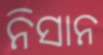
ନିସାନ